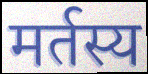
मर्तस्य